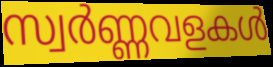
സ്വർണ്ണവളകൾ